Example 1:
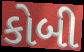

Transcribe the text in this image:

કોબી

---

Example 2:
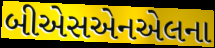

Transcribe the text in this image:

બીએસએનએલના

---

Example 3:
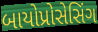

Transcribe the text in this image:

બાયોપ્રોસેસિંગ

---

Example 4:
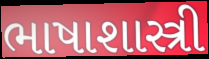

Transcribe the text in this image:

ભાષાશાસ્ત્રી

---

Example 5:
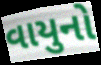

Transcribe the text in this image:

વાયુનો